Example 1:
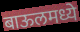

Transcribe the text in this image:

बाऊलमध्ये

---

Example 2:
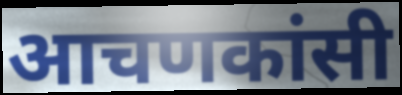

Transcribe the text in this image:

आचणकांसी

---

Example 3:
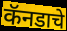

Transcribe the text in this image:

कॅनडाचे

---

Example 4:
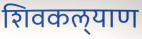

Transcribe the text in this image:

शिवकल्याण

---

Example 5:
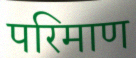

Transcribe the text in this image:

परिमाण